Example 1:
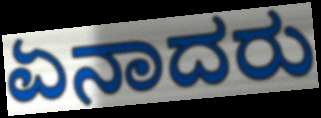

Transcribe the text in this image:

ಏನಾದರು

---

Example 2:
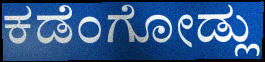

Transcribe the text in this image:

ಕಡೆಂಗೋಡ್ಲು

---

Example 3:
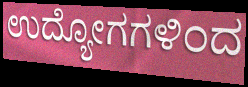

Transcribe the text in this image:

ಉದ್ಯೋಗಗಳಿಂದ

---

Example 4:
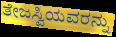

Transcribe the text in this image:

ತೇಜಸ್ವಿಯವರನ್ನು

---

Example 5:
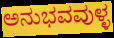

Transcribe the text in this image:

ಅನುಭವವುಳ್ಳ